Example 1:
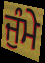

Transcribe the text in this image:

ਜੁੰਮੇ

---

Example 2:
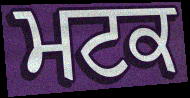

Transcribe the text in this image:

ਮਟਕ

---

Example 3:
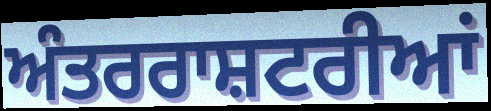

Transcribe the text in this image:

ਅੰਤਰਰਾਸ਼ਟਰੀਆਂ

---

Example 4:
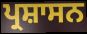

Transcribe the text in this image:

ਪ੍ਰਸ਼ਾਸਨ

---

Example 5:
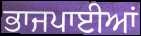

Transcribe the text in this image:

ਭਾਜਪਾਈਆਂ